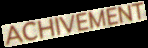
ACHIVEMENT